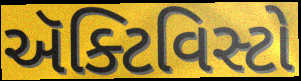
ઍક્ટિવિસ્ટો